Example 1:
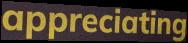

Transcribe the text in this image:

appreciating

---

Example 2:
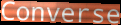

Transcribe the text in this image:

Converse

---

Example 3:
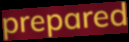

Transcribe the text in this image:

prepared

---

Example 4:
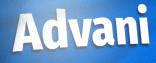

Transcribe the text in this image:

Advani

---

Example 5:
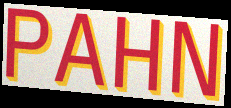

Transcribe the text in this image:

PAHN